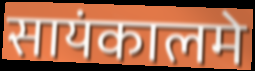
सायंकालमे